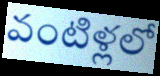
వంటిళ్లలో